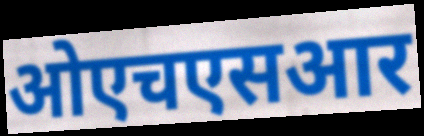
ओएचएसआर